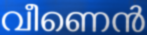
വീണെൻ